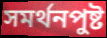
সমর্থনপুষ্ট